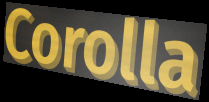
Corolla